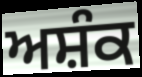
ਅਸ਼ੰਕ